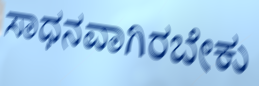
ಸಾಧನವಾಗಿರಬೇಕು